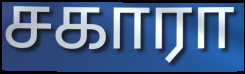
சகாரா